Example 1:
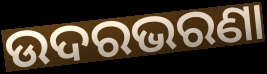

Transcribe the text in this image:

ଉଦରଭରଣା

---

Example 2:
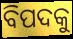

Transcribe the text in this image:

ବିପଦକୁ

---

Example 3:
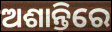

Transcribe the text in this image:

ଅଶାନ୍ତିରେ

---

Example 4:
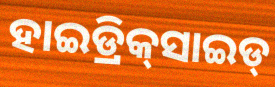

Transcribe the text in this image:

ହାଇଡ୍ରିକ୍‌ସାଇଡ୍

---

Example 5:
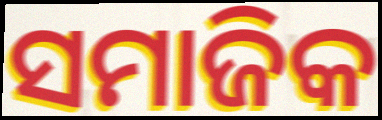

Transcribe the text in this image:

ସମାଜିକ